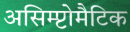
असिम्प्टोमैटिक